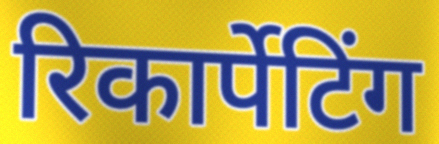
रिकार्पेटिंग